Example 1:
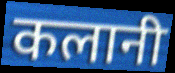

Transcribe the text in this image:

कलानी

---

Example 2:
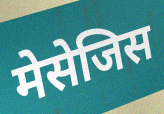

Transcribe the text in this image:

मेसेजिस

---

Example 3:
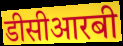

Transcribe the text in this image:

डीसीआरबी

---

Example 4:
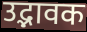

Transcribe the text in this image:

उद्भावक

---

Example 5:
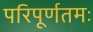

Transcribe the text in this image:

परिपूर्णतमः